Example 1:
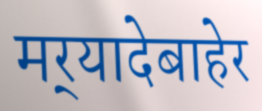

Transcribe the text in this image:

मर्यादेबाहेर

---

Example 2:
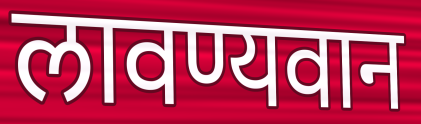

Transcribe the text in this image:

लावण्यवान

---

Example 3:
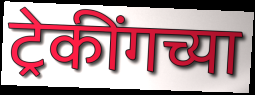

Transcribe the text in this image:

ट्रेकींगच्या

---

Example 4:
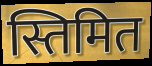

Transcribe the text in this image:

स्तिमित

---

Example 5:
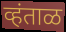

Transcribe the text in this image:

व्हंताळ